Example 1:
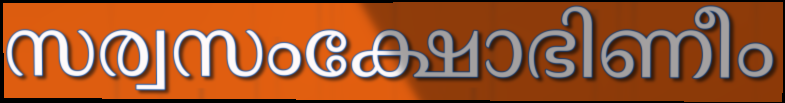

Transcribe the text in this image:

സര്വസംക്ഷോഭിണീം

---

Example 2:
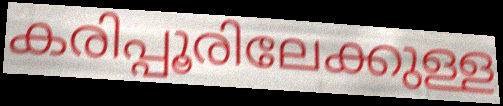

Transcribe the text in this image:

കരിപ്പൂരിലേക്കുള്ള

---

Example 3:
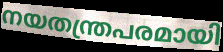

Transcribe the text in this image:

നയതന്ത്രപരമായി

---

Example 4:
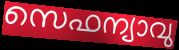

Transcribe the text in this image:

സെഫന്യാവു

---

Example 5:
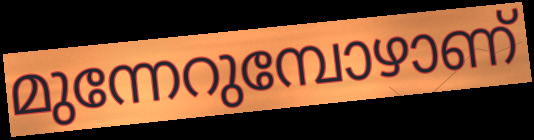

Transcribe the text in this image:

മുന്നേറുമ്പോഴാണ്